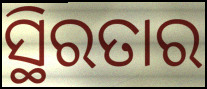
ସ୍ଥିରତାର